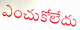
ఎంచుకోలేదు